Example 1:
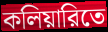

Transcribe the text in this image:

কলিয়ারিতে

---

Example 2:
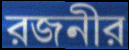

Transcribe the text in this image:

রজনীর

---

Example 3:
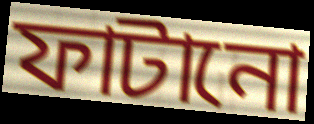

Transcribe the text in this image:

ফাটানো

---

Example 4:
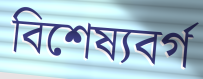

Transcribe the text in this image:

বিশেষ্যবর্গ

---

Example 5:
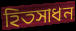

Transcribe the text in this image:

হিতসাধন